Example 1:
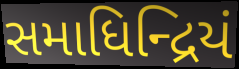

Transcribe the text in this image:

સમાધિન્દ્રિયં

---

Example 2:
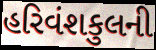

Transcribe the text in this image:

હરિવંશકુલની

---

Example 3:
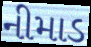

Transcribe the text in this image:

નીમાડ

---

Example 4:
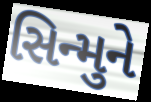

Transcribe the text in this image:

સિન્મુને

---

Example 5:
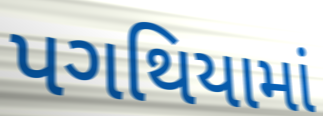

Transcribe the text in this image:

પગથિયામાં